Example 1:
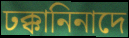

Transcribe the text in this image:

ঢক্কানিনাদে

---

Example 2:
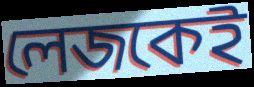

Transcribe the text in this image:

লেজকেই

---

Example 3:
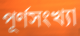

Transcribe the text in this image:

পূর্ণসংখ্যা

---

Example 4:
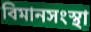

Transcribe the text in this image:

বিমানসংস্থা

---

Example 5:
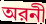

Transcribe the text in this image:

অরনী